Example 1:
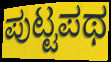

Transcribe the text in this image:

ಪುಟ್ಟಪಥ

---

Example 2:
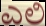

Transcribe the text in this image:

ಎಲಿ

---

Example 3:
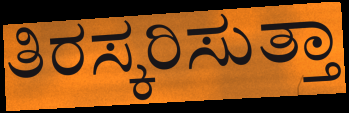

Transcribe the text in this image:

ತಿರಸ್ಕರಿಸುತ್ತಾ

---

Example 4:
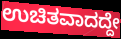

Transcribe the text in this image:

ಉಚಿತವಾದದ್ದೇ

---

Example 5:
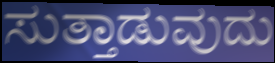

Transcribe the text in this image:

ಸುತ್ತಾಡುವುದು